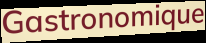
Gastronomique